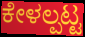
ಕೇಳಲ್ಪಟ್ಟ